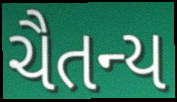
ચૈતન્ય